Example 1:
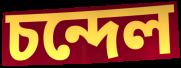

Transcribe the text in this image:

চন্দেল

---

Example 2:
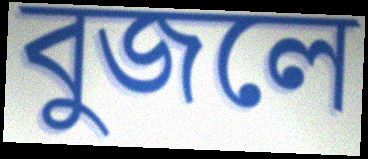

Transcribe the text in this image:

বুজলে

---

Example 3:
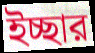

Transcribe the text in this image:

ইচ্ছার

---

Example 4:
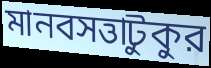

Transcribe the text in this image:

মানবসত্তাটুকুর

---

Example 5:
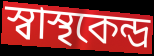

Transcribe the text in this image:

স্বাস্থকেন্দ্র